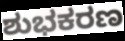
ಶುಭಕರಣ